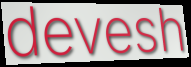
devesh